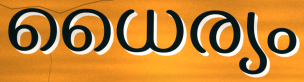
ധൈര്യം